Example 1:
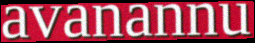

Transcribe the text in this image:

avanannu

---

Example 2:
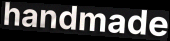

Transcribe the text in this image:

handmade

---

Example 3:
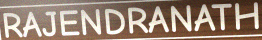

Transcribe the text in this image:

RAJENDRANATH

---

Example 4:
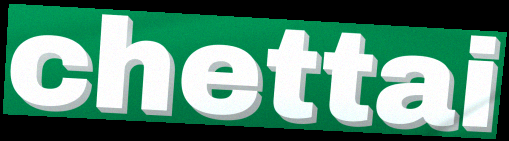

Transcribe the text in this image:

chettai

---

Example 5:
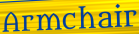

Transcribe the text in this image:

Armchair